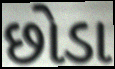
છોડા